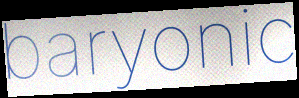
baryonic